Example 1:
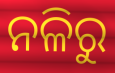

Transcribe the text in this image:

ନଳିରୁ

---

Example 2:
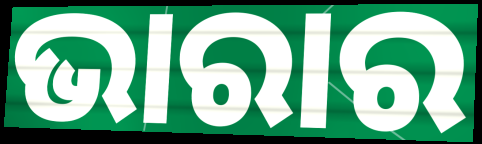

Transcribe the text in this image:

ଭାରାର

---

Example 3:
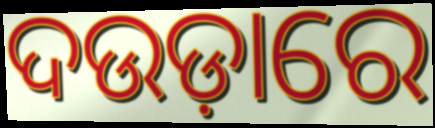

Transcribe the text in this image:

ଦଉଡ଼ାରେ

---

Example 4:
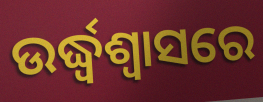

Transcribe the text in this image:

ଉର୍ଦ୍ଧ୍ଵଶ୍ୱାସରେ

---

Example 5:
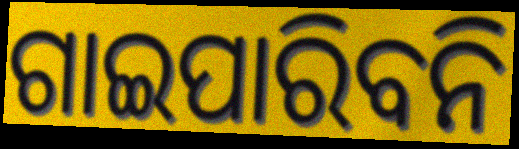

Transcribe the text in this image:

ଗାଇପାରିବନି